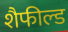
शैफील्ड